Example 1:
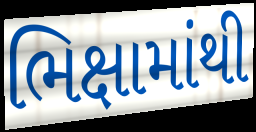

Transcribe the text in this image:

ભિક્ષામાંથી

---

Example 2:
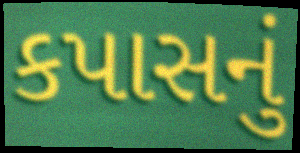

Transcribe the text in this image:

કપાસનું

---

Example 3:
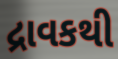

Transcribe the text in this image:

દ્રાવકથી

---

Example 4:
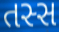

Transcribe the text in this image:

તસ્સ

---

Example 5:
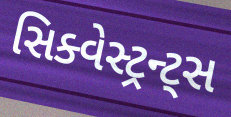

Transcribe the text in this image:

સિક્વેસ્ટ્રન્ટ્સ